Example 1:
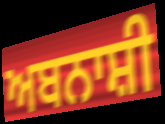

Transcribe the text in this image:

ਅਬਨਾਸ਼ੀ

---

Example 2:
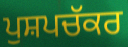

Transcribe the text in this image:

ਪੁਸ਼ਪਚੱਕਰ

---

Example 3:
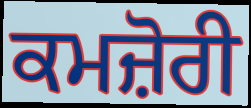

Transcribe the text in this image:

ਕਮਜ਼ੋਰੀ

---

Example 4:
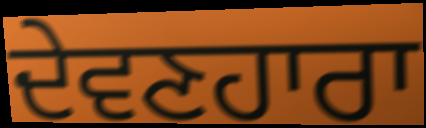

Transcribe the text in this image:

ਦੇਵਣਹਾਰਾ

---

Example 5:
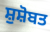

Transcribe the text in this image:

ਸ਼ੁਸ਼ੋਬਤ